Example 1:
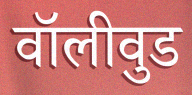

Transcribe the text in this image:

वॉलीवुड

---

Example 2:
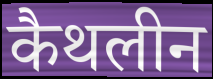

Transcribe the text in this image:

कैथलीन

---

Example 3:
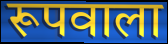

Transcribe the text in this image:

रूपवाला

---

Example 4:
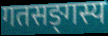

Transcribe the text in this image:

गतसङ्गस्य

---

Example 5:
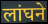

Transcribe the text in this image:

लांघने